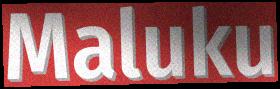
Maluku